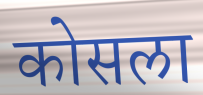
कोसला